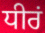
ਧੀਰਂ